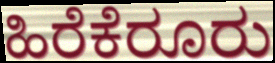
ಹಿರೆಕೆರೂರು